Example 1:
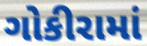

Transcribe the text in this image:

ગોકીરામાં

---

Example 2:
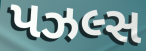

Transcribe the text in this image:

પઝલ્સ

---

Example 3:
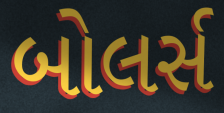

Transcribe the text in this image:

બોલર્સ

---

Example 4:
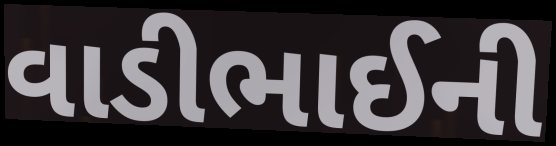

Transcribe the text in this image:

વાડીભાઈની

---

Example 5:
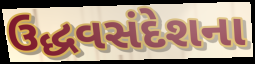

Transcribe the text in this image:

ઉદ્ધવસંદેશના